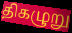
திகழுறு